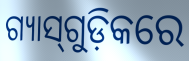
ଗ୍ୟାସ୍‌ଗୁଡ଼ିକରେ